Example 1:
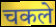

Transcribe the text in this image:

चकले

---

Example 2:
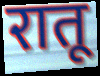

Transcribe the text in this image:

रातू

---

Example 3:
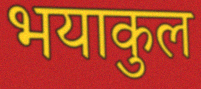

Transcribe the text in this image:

भयाकुल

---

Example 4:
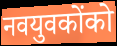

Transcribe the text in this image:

नवयुवकोंको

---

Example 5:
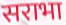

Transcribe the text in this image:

सराभा